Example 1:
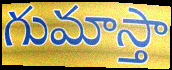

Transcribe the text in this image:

గుమాస్తా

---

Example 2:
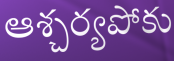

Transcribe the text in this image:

ఆశ్చర్యపోకు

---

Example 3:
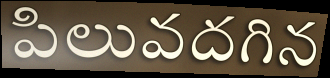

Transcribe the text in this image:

పిలువదగిన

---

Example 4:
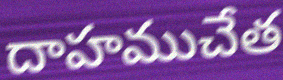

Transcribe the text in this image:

దాహముచేత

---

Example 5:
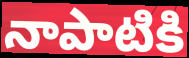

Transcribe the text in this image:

నాపాటికి